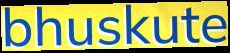
bhuskute